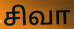
சிவா